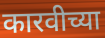
कारवीच्या